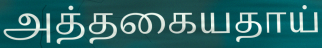
அத்தகையதாய்